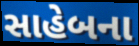
સાહેબના